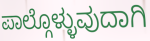
ಪಾಲ್ಗೊಳ್ಳುವುದಾಗಿ